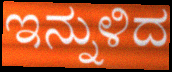
ಇನ್ನುಳಿದ